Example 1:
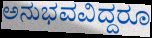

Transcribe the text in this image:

ಅನುಭವವಿದ್ದರೂ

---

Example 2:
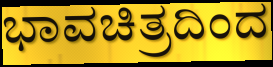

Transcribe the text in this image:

ಭಾವಚಿತ್ರದಿಂದ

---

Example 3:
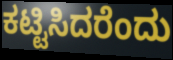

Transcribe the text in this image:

ಕಟ್ಟಿಸಿದರೆಂದು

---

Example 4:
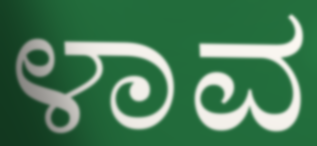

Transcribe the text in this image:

ಳಾವ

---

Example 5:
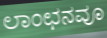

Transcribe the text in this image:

ಲಾಂಛನವೂ